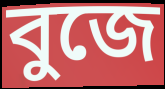
বুজে